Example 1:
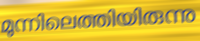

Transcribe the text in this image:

മുന്നിലെത്തിയിരുന്നു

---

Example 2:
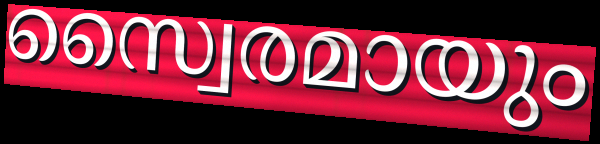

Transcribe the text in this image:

സ്വൈരമായും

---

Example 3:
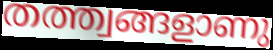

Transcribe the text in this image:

തത്ത്വങ്ങളാണു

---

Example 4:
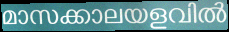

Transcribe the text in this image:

മാസക്കാലയളവിൽ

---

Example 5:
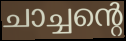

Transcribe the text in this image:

ചാച്ചന്റെ